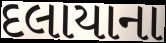
દલાયાના